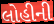
લોહીની